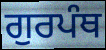
ਗੁਰਪੰਥ